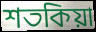
শতকিয়া